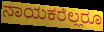
ನಾಯಕರೆಲ್ಲರೂ